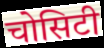
चोसिटी